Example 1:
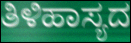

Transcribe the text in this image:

ತಿಳಿಹಾಸ್ಯದ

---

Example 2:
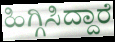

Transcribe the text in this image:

ಹಿಗ್ಗಿಸಿದ್ದಾರೆ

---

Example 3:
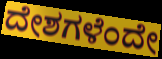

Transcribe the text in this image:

ದೇಶಗಳೆಂದೇ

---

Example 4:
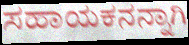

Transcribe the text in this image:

ಸಹಾಯಕನನ್ನಾಗಿ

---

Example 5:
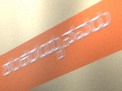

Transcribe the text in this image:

ಶಂಕರಯ್ಯನವರು